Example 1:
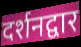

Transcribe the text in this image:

दर्शनद्वार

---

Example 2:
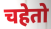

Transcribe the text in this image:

चहेतो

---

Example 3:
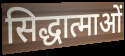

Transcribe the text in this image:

सिद्धात्माओं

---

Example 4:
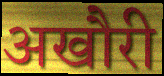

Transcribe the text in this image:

अखौरी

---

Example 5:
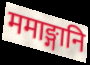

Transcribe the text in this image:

ममाङ्गानि